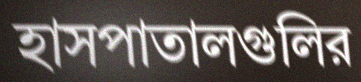
হাসপাতালগুলির